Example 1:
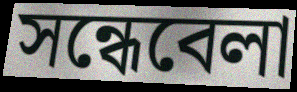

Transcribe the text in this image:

সন্ধেবেলা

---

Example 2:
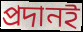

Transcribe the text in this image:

প্রদানই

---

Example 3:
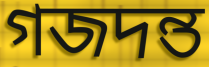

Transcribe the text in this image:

গজদন্ত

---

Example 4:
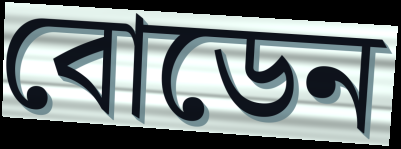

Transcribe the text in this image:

বোডেন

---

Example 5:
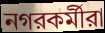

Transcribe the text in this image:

নগরকর্মীরা